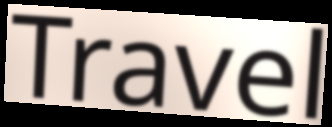
Travel